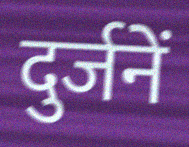
दुर्जनें